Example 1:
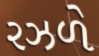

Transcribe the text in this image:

રઝળે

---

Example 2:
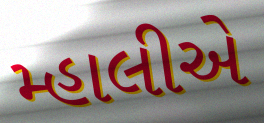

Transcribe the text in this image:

મ્હાલીએ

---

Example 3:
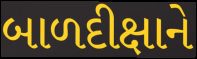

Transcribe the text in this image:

બાળદીક્ષાને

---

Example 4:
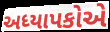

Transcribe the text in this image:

અધ્યાપકોએ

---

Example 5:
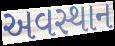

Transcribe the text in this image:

અવસ્થાન